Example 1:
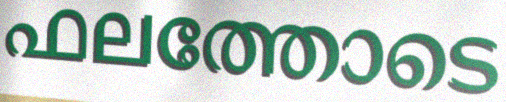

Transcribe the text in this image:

ഫലത്തോടെ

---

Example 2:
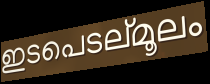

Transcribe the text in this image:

ഇടപെടല്മൂലം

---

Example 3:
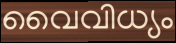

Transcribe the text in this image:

വൈവിധ്യം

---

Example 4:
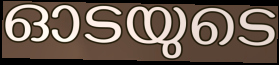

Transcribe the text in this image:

ഓടയുടെ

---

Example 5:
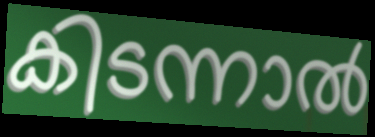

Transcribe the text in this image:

കിടന്നാൽ